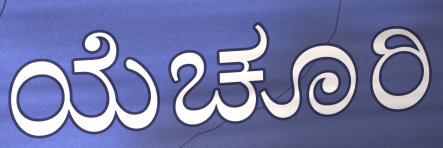
ಯೆಚೂರಿ